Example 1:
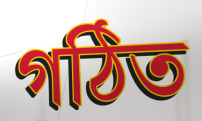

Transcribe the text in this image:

গঠিত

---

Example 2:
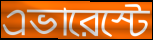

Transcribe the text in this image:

এভারেস্টে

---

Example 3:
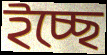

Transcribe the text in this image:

ইচ্ছে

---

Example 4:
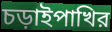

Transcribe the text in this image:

চড়াইপাখির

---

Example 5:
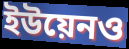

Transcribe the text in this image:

ইউয়েনও